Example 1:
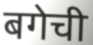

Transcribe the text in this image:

बगेची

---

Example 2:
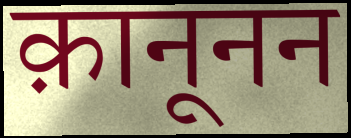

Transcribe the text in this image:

क़ानूनन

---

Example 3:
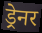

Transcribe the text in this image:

ड्रेनर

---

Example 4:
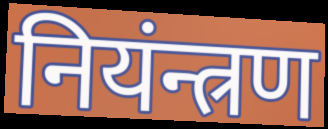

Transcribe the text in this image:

नियंन्त्रण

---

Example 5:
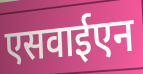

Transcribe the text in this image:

एसवाईएन